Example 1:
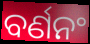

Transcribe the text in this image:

ବର୍ଣନଂ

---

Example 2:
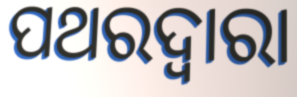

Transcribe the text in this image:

ପଥରଦ୍ୱାରା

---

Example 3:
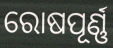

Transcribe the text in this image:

ରୋଷପୂର୍ଣ୍ଣ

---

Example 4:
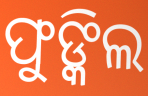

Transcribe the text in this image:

ଫୁଙ୍କିଲ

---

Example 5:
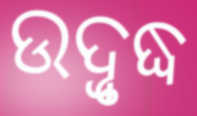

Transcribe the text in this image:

ଉଦ୍ବୃଦ୍ଧ